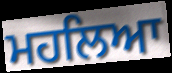
ਮਹਲਿਆ